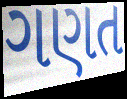
ગણત